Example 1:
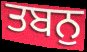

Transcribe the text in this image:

ਤਬਨੁ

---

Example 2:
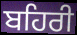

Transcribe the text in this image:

ਬਹਿਰੀ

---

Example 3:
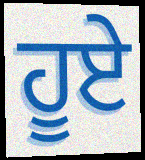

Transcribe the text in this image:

ਹੂਏ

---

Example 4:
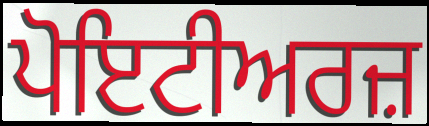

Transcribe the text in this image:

ਪੋਇਟੀਅਰਜ਼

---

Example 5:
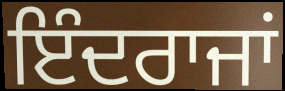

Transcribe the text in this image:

ਇੰਦਰਾਜਾਂ